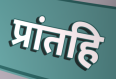
प्रांतहि